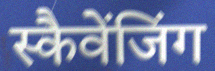
स्कैवेंजिंग